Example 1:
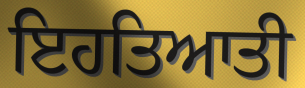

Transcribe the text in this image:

ਇਹਤਿਆਤੀ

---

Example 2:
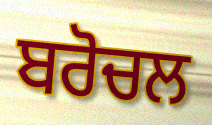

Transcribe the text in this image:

ਬਰੋਚਲ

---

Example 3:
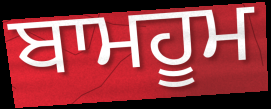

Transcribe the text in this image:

ਬਾਮਹੂਮ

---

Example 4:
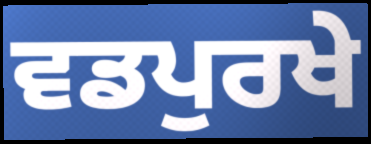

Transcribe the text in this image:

ਵਡਪੁਰਖੇ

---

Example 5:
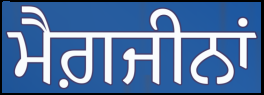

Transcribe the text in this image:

ਮੈਗ਼ਜੀਨਾਂ